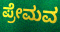
ಪ್ರೇಮವ